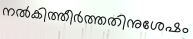
നൽകിത്തീർത്തതിനുശേഷം